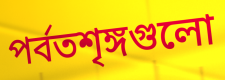
পর্বতশৃঙ্গগুলো